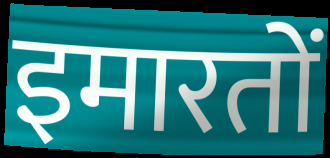
इमारतों